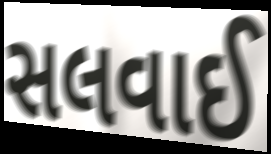
સલવાઈ